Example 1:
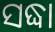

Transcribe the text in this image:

ସଦ୍ଧା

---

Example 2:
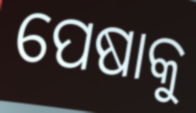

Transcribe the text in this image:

ପେଷାକୁ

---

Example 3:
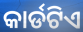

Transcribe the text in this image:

କାର୍ଡଟିଏ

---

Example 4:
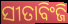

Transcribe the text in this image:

ସୀତାବିଂଜି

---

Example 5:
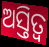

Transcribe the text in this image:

ଅସ୍ତିତ୍ଵ